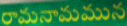
రామనామమున